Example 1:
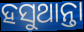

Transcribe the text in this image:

ହସୁଥାନ୍ତା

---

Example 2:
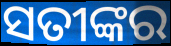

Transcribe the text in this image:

ସତୀଙ୍କର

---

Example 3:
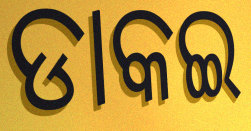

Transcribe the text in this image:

ଡାକଇ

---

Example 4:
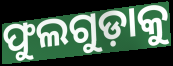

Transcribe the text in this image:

ଫୁଲଗୁଡ଼ାକୁ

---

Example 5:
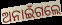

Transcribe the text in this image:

ଅନାଇଁଗଲେ